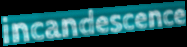
incandescence